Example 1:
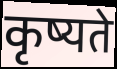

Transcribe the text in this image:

कृष्यते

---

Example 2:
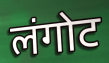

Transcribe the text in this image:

लंगोट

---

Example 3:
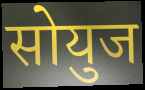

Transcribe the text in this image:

सोयुज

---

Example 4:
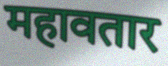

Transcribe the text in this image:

महावतार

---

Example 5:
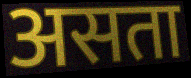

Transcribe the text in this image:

असता